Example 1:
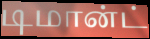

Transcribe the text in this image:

டிமான்ட்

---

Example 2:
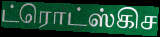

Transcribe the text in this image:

ட்ரொட்ஸ்கிச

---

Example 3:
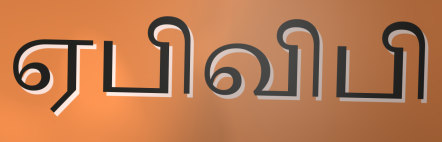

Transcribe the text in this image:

ஏபிவிபி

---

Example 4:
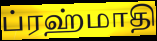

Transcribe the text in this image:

ப்ரஹ்மாதி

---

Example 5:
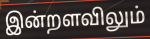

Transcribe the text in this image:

இன்றளவிலும்